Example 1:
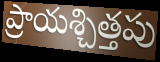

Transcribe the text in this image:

ప్రాయశ్చిత్తపు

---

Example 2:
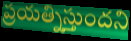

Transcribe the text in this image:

ప్రయత్నిస్తుందని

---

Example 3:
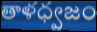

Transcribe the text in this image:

తాళధ్వజం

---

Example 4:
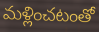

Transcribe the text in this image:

మళ్లించటంతో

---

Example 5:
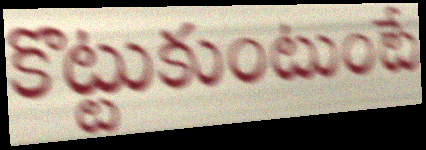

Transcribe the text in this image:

కొట్టుకుంటుంటే